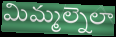
మిమ్మల్నెలా